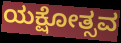
ಯಕ್ಷೋತ್ಸವ